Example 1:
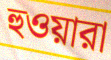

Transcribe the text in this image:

হুওয়ারা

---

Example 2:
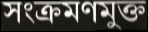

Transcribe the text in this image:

সংক্রমণমুক্ত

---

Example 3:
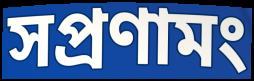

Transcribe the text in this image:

সপ্রণামং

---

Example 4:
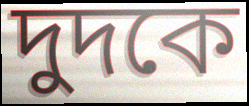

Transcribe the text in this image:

দুদকে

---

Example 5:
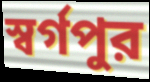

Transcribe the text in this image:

স্বর্গপুর